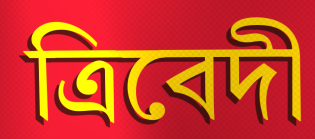
ত্রিবেদী